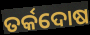
ତର୍କଦୋଷ